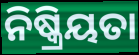
ନିଷ୍କ୍ରିୟତା